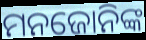
ମନଜୋନିଙ୍କ